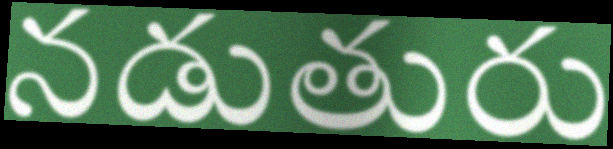
నడుతురు